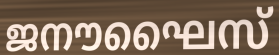
ജനൗഘൈസ്